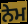
ਨੇਮ